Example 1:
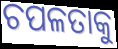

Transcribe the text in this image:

ଚପଳତାକୁ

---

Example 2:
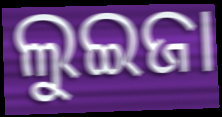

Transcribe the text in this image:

ଲୁଇଜା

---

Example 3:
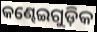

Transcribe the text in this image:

କଣ୍ଢେଇଗୁଡ଼ିକ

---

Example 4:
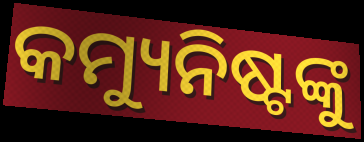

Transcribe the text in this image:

କମ୍ୟୁନିଷ୍ଟଙ୍କୁ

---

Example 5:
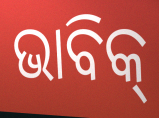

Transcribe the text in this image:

ଭାବିକ୍